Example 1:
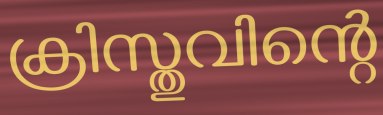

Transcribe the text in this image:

ക്രിസ്തുവിന്റെ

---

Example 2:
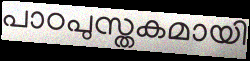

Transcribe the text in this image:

പാഠപുസ്തകമായി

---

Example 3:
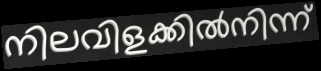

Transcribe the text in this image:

നിലവിളക്കിൽനിന്ന്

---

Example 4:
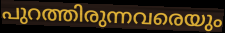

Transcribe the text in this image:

പുറത്തിരുന്നവരെയും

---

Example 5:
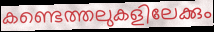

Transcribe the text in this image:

കണ്ടെത്തലുകളിലേക്കും